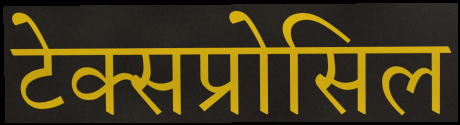
टेक्सप्रोसिल